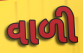
વાળી